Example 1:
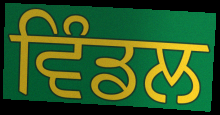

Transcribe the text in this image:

ਵਿੰਡਲ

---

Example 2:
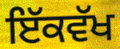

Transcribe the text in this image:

ਇੱਕਵੱਖ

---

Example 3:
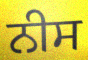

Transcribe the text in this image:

ਨੀਸ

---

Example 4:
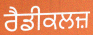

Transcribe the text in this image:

ਰੈਡੀਕਲਜ਼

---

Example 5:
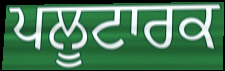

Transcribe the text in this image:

ਪਲੂਟਾਰਕ